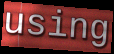
using